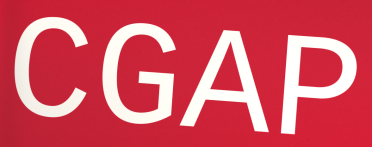
CGAP